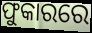
ଫୁକାରରେ